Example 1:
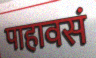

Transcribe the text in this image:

पाहावसं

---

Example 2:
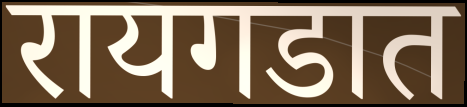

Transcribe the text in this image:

रायगडात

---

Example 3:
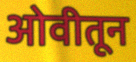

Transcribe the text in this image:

ओवीतून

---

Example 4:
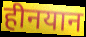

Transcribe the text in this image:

हीनयान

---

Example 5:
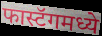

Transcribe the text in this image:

फास्टॅगमध्ये